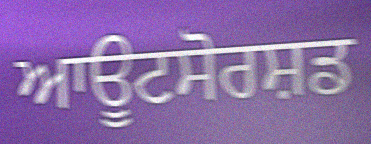
ਆਊਟਸੋਰਸ਼ਡ